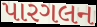
પારગલન